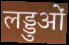
लड्डुओं